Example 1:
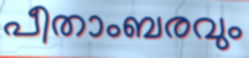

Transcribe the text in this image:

പീതാംബരവും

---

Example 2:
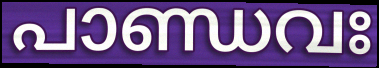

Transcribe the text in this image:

പാണ്ഡവഃ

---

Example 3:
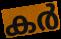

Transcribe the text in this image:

കർ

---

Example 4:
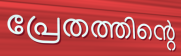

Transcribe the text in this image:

പ്രേതത്തിന്റെ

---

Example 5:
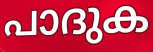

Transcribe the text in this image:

പാദുക